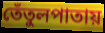
তেঁতুলপাতায়